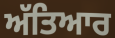
ਅੱਤਿਆਰ